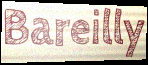
Bareilly